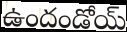
ఉందండోయ్